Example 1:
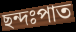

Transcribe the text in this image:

ছন্দঃপাত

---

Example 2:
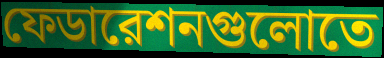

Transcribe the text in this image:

ফেডারেশনগুলোতে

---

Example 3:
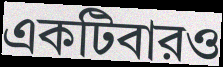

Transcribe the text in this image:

একটিবারও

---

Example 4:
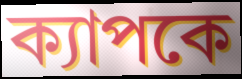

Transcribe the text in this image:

ক্যাপকে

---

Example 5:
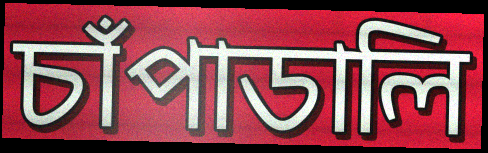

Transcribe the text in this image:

চাঁপাডালি